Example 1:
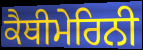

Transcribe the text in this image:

ਕੈਥੀਮੇਰਿਨੀ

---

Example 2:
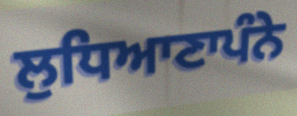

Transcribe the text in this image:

ਲੁਧਿਆਣਾਪੰਨੇ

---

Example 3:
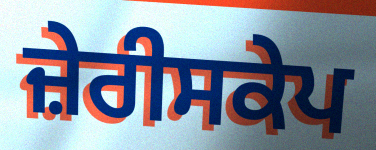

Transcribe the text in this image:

ਜ਼ੇਰੀਸਕੇਪ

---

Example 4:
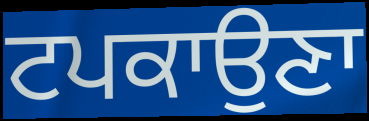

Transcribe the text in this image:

ਟਪਕਾਉਣਾ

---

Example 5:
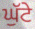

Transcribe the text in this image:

ਘੁੱਟੇ